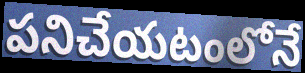
పనిచేయటంలోనే